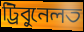
ট্ৰিবুনেলত